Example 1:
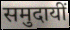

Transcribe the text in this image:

समुदायीं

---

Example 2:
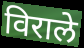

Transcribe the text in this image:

विराले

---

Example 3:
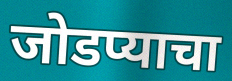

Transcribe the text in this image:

जोडप्याचा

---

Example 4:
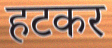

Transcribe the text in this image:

हटकर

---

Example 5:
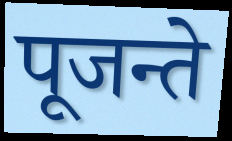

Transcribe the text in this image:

पूजन्ते